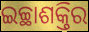
ଇଚ୍ଛାଶକ୍ତିର